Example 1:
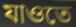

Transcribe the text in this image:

যাওতে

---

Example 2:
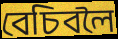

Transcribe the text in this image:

বেচিবলৈ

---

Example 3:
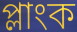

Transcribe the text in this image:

প্লাংক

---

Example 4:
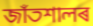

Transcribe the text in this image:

জাঁতশালৰ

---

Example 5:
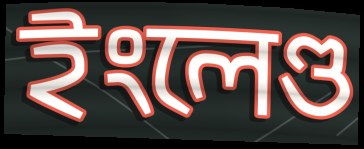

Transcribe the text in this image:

ইংলেণ্ড